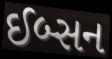
ઈબ્સન